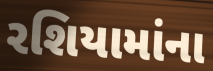
રશિયામાંના